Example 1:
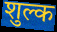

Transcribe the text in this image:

शुल्क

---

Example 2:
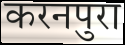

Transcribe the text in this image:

करनपुरा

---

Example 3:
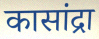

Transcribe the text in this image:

कासांद्रा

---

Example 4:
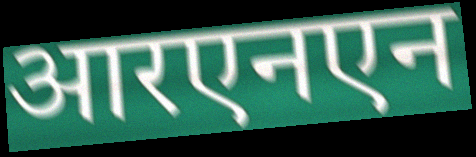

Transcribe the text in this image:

आरएनएन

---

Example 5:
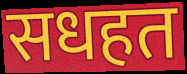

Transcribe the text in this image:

सधहत